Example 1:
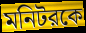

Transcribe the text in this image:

মনিটরকে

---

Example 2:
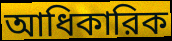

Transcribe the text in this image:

আধিকারিক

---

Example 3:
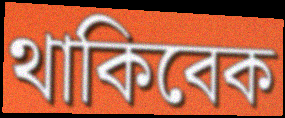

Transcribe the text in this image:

থাকিবেক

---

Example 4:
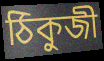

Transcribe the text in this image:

ঠিকুজী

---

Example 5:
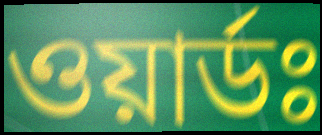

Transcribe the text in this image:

ওয়ার্ডঃ